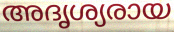
അദൃശ്യരായ